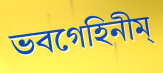
ভবগেহিনীম্